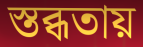
স্তব্ধতায়